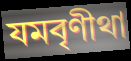
যমবৃণীথা